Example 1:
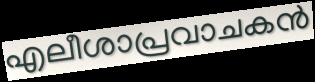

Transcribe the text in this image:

എലീശാപ്രവാചകൻ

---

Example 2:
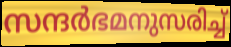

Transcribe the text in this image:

സന്ദർഭമനുസരിച്ച്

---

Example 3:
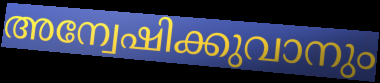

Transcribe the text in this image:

അന്വേഷിക്കുവാനും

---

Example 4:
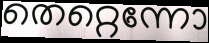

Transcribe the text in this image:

തെറ്റെന്നോ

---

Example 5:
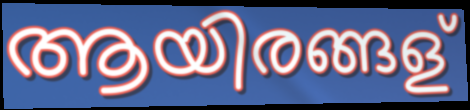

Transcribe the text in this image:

ആയിരങ്ങള്